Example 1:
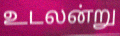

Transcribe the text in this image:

உடலன்று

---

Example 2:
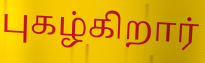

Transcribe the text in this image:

புகழ்கிறார்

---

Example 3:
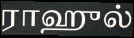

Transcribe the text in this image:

ராஹுல்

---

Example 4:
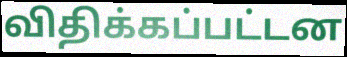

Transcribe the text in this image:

விதிக்கப்பட்டன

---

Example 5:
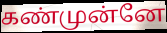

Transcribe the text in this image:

கண்முன்னே